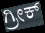
ಗ್ರೀಕ್